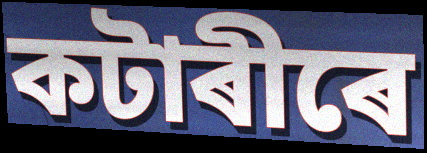
কটাৰীৰে